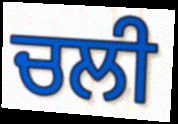
ਚਲੀ